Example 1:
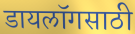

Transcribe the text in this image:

डायलॉगसाठी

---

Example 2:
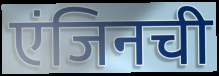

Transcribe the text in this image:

एंजिनची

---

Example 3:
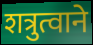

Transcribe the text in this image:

शत्रुत्वाने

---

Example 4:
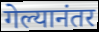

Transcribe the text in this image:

गेल्यानंतर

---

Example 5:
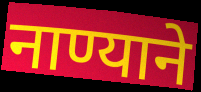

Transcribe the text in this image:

नाण्याने